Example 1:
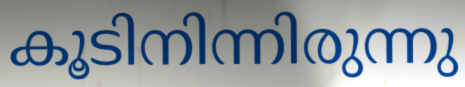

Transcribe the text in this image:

കൂടിനിന്നിരുന്നു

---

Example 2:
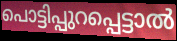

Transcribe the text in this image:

പൊട്ടിപ്പുറപ്പെട്ടാൽ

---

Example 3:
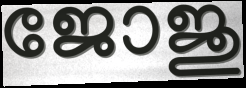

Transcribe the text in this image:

ജോജു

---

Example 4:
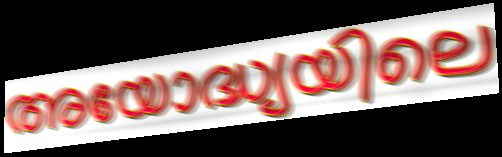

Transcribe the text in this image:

അയോദ്ധ്യയിലെ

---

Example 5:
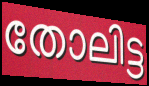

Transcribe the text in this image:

തോലിട്ട